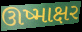
ઊષ્માક્ષર